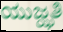
ಯುಜ್ಝತಿ